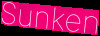
Sunken